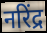
नरिंद्र